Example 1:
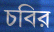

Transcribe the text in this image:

চবির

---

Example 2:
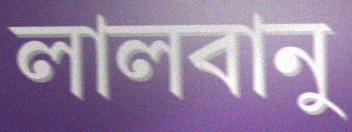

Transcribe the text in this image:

লালবানু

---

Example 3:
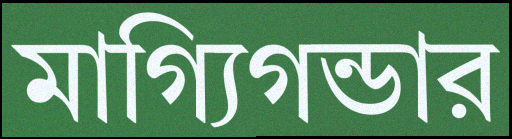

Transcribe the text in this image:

মাগ্যিগন্ডার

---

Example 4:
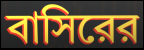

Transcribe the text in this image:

বাসিরের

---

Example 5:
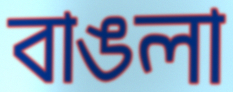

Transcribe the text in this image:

বাঙলা